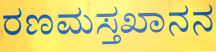
ರಣಮಸ್ತಖಾನನ